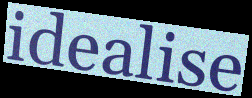
idealise